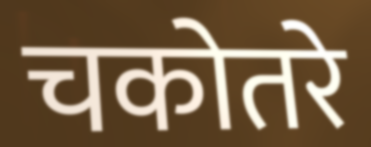
चकोतरे